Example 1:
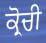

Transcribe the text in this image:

ਕ੍ਰੋਚੀ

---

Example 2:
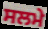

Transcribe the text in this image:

ਸਲਮੇ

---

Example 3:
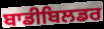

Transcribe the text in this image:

ਬਾਡੀਬਿਲਡਰ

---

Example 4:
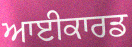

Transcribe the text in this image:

ਆਈਕਾਰਡ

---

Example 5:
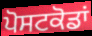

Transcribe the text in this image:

ਪੋਸਟਕੋਡਾਂ